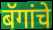
बॅगांचे